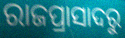
ରାଜପ୍ରାସାଦରୁ